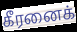
கீரனைக்